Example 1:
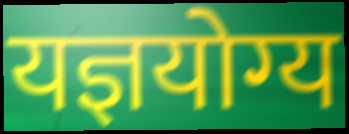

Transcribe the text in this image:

यज्ञयोग्य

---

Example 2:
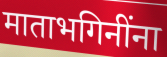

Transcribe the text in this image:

माताभगिनींना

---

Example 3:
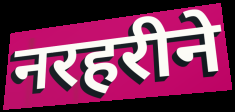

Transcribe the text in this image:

नरहरीने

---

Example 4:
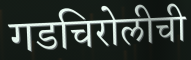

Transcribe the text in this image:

गडचिरोलीची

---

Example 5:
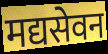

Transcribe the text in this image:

मद्यसेवन